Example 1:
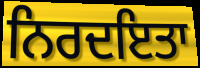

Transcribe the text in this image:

ਨਿਰਦਇਤਾ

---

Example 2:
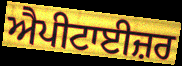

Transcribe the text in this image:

ਐਪੀਟਾਈਜ਼ਰ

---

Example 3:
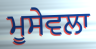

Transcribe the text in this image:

ਮੂਸੇਵਲਾ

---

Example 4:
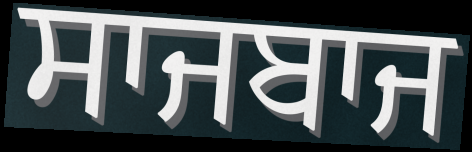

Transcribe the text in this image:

ਸਾਜਬਾਜ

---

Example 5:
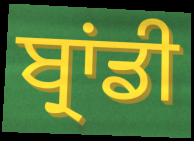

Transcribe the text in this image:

ਬ੍ਰਾਂਡੀ